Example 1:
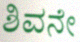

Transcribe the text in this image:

ಶಿವನೇ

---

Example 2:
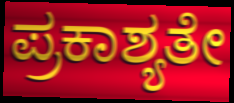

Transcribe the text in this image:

ಪ್ರಕಾಶ್ಯತೇ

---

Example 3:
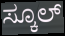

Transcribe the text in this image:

ಸ್ಕೂಲ್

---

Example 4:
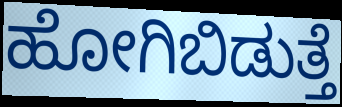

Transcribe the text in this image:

ಹೋಗಿಬಿಡುತ್ತೆ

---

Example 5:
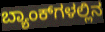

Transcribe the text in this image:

ಬ್ಯಾಂಕ್‌ಗಳಲ್ಲಿನ